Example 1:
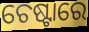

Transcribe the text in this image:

ଚେଷ୍ଟାରେ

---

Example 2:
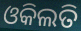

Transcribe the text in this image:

ଓକିଲତି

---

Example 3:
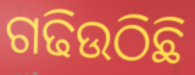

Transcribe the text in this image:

ଗଢିଉଠିଛି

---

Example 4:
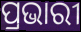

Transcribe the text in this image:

ପ୍ରଭାରୀ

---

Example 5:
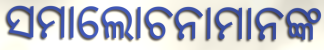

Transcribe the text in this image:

ସମାଲୋଚନାମାନଙ୍କ